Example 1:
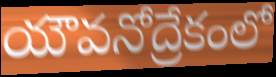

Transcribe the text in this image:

యౌవనోద్రేకంలో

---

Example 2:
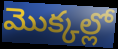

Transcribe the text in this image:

మొక్కల్లో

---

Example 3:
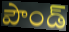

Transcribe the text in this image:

పౌండ్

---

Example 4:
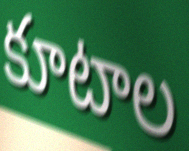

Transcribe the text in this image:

కూటాల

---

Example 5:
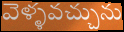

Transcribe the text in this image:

వెళ్ళవచ్చును